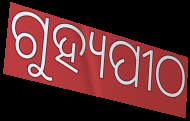
ଗୁହ୍ୟପୀଠ